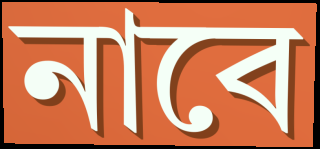
নাবে